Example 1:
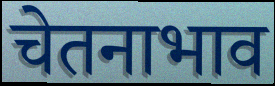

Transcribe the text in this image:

चेतनाभाव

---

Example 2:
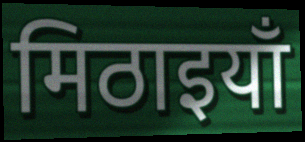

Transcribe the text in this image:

मिठाइयाँ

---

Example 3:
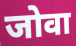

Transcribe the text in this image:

जोवा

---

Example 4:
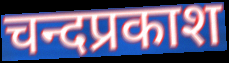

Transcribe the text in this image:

चन्दप्रकाश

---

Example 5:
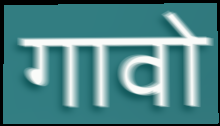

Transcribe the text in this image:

गावो